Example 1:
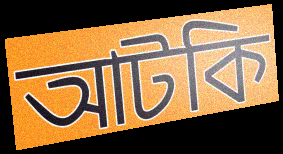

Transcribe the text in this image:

আটকি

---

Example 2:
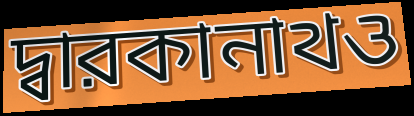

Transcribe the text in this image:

দ্বারকানাথও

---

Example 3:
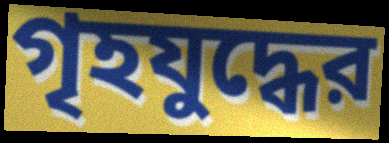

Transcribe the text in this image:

গৃহযুদ্ধের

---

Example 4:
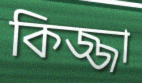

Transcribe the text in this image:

কিজ্জা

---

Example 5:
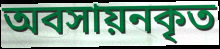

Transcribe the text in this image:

অবসায়নকৃত